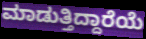
ಮಾಡುತ್ತಿದ್ದಾರೆಯೆ